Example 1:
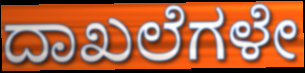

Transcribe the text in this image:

ದಾಖಲೆಗಳೇ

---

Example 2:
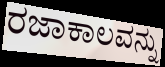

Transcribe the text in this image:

ರಜಾಕಾಲವನ್ನು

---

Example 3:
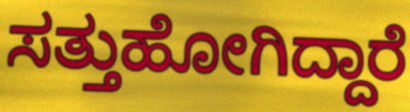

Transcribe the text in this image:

ಸತ್ತುಹೋಗಿದ್ದಾರೆ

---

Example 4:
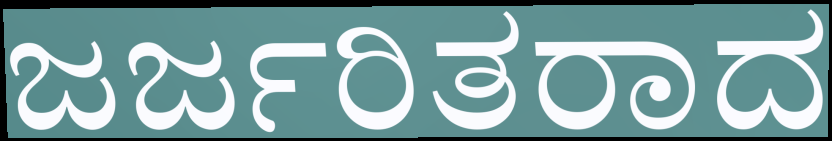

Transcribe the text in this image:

ಜರ್ಜರಿತರಾದ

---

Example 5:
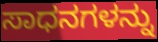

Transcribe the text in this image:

ಸಾಧನಗಳನ್ನು